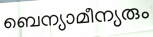
ബെന്യാമീന്യരും